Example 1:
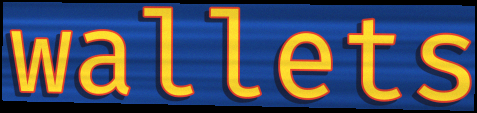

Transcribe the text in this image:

wallets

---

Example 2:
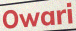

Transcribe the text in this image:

Owari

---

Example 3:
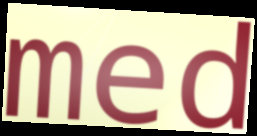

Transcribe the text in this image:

med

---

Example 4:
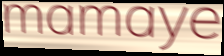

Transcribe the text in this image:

mamaye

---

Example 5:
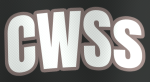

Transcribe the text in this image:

CWSs